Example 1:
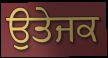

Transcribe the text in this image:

ਉਤੇਜਕ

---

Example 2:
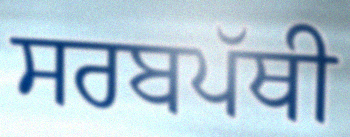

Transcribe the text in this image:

ਸਰਬਪੱਥੀ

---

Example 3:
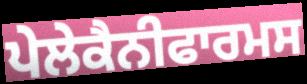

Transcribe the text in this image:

ਪੇਲੇਕੈਨੀਫਾਰਮਸ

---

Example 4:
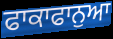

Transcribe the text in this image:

ਫਾਕਾਫਾਨੁਆ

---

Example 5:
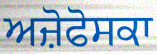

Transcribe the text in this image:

ਅਜ਼ੋਫੋਸਕਾ